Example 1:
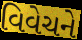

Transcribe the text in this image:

વિવેચને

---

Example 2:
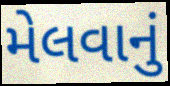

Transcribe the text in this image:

મેલવાનું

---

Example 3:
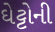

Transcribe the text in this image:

ઘેટ્ટોની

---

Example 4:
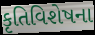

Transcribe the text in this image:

કૃતિવિશેષના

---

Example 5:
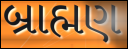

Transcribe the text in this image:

બ્રાહ્મણ